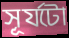
সূৰ্যটো